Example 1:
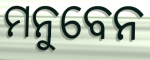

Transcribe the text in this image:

ମନୁବେନ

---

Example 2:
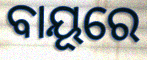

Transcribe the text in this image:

ବାୟୂରେ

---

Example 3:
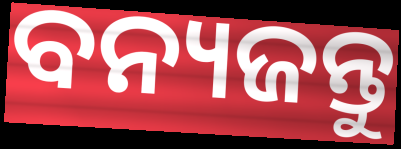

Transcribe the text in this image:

ବନ୍ୟଜନ୍ତୁ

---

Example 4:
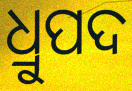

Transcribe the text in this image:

ଧ୍ରୁପଦ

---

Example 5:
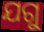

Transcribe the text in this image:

ଯଗୁ